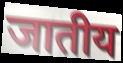
जातीय